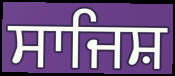
ਸਾਜਿਸ਼